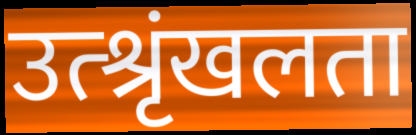
उत्श्रृंखलता